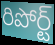
రిపోర్ట్